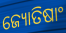
ଜ୍ୟୋତିଷାଂ